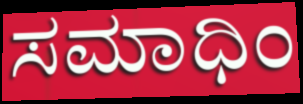
ಸಮಾಧಿಂ